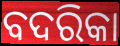
ବଦରିକା